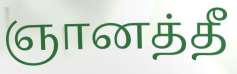
ஞானத்தீ